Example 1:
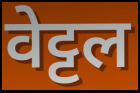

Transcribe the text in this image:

वेट्टल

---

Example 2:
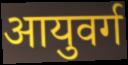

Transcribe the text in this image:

आयुवर्ग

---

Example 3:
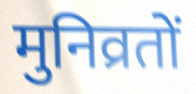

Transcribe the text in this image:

मुनिव्रतों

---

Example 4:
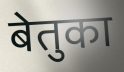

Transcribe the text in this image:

बेतुका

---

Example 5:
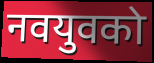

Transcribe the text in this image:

नवयुवको